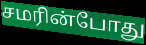
சமரின்போது